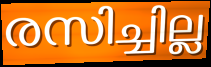
രസിച്ചില്ല